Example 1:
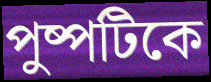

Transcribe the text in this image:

পুষ্পটিকে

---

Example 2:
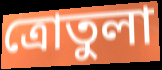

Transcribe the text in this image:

ত্রোতুলা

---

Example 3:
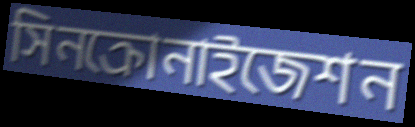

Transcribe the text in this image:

সিনক্রোনাইজেশন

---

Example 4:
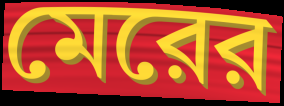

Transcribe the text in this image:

মেরের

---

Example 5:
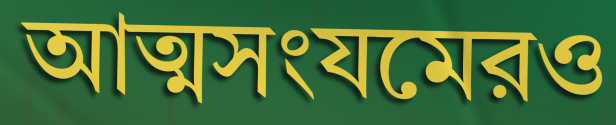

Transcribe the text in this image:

আত্মসংযমেরও